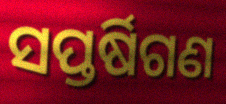
ସପ୍ତର୍ଷିଗଣ